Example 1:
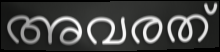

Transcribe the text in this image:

അവരത്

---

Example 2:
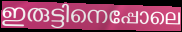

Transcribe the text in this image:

ഇരുട്ടിനെപ്പോലെ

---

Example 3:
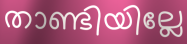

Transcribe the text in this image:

താണ്ടിയില്ലേ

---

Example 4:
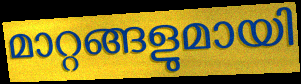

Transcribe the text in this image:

മാറ്റങ്ങളുമായി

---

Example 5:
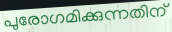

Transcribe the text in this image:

പുരോഗമിക്കുന്നതിന്